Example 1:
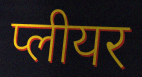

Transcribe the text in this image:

प्लीयर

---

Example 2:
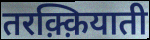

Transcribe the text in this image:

तरक़्क़ियाती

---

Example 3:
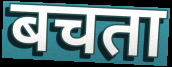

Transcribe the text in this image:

बचता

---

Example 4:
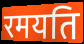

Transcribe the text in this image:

रमयति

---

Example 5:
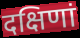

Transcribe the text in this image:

दक्षिणां